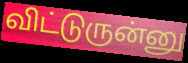
விட்டுருன்னு